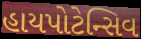
હાયપોટેન્સિવ